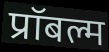
प्रॉबल्म